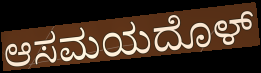
ಆಸಮಯದೊಳ್